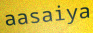
aasaiya